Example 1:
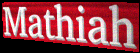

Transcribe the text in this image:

Mathiah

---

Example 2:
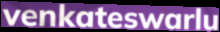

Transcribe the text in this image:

venkateswarlu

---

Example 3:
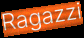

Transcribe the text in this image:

Ragazzi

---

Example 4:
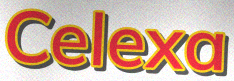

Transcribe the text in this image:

Celexa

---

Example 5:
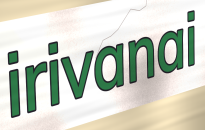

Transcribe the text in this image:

irivanai